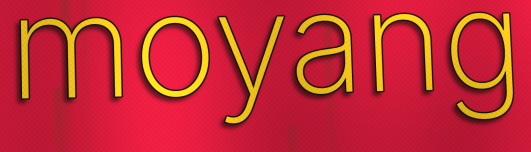
moyang